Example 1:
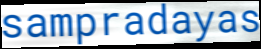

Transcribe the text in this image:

sampradayas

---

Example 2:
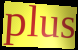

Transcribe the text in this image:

plus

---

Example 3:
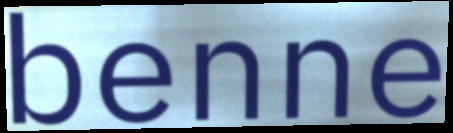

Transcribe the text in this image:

benne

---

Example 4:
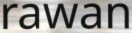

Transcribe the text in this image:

rawan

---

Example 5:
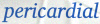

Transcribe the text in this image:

pericardial